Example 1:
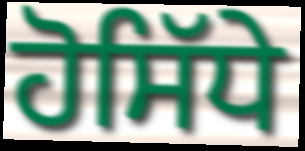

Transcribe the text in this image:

ਹੋਸਿੱਧੇ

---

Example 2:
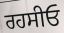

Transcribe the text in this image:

ਰਹਸੀਓ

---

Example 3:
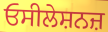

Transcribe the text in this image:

ਓਸੀਲੇਸ਼ਨਜ਼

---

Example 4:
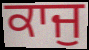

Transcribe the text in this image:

ਕਾਜੁ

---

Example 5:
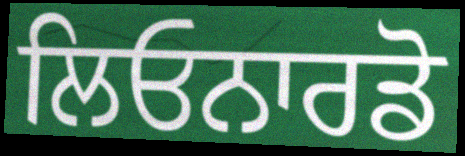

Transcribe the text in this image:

ਲਿਓਨਾਰਡੋ